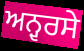
ਅਨ੍ਦਰਸੇ